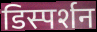
डिस्पर्शन